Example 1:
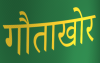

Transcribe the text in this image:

गौताखोर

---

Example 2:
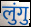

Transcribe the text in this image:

लुंगु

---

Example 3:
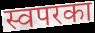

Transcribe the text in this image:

स्वपरका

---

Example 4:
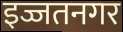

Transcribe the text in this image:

इज्जतनगर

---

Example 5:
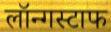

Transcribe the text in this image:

लॉन्गस्टाफ